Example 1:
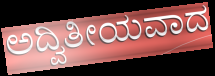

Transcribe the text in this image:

ಅದ್ವಿತೀಯವಾದ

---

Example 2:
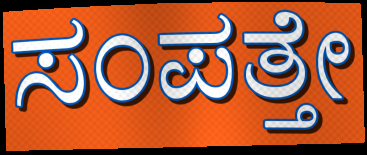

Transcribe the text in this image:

ಸಂಪತ್ತೇ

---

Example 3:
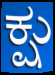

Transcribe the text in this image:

ಕ್ಷು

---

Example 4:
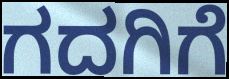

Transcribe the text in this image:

ಗದಗಿಗೆ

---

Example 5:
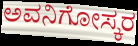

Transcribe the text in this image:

ಅವನಿಗೋಸ್ಕರ